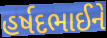
હર્ષદભાઈને